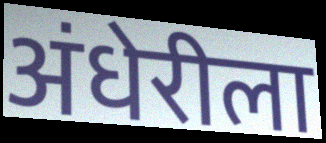
अंधेरीला